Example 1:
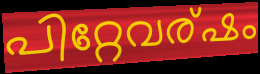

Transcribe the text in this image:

പിറ്റേവര്ഷം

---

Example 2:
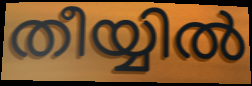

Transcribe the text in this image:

തീയ്യിൽ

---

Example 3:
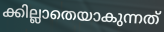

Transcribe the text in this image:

ക്കില്ലാതെയാകുന്നത്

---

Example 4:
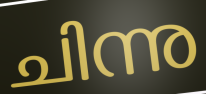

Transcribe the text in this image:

ചിന്നു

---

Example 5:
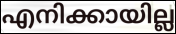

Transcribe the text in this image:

എനിക്കായില്ല